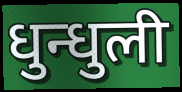
धुन्धुली